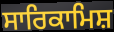
ਸਾਰਿਕਾਮਿਸ਼